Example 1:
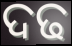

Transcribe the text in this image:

ଦଢ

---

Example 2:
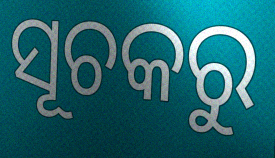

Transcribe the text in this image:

ସୂଚକରୁ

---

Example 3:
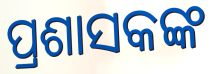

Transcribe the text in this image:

ପ୍ରଶାସକଙ୍କ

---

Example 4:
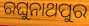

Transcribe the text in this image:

ରଘୁନାଥପୁର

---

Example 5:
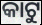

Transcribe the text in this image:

କାଟୁ